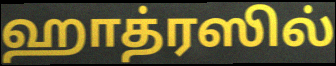
ஹாத்ரஸில்